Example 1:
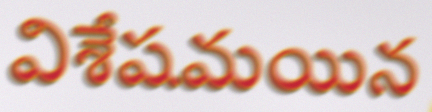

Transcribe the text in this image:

విశేషమయిన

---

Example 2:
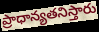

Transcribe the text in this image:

ప్రాధాన్యతనిస్తారు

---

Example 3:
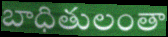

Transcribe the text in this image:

బాధితులంతా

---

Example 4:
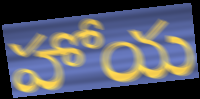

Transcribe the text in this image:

హోయ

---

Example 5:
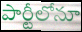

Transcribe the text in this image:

పార్టీలోనూ